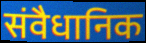
संवैधानिक